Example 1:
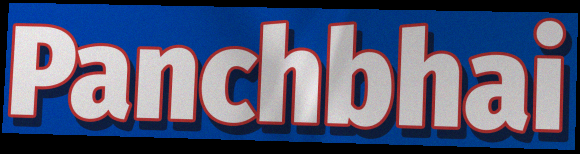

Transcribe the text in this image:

Panchbhai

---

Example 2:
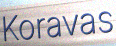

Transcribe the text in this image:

Koravas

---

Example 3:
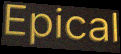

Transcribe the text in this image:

Epical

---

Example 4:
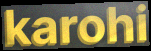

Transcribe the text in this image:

karohi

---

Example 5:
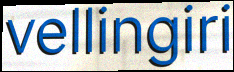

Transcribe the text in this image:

vellingiri